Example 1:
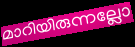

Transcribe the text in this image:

മാറിയിരുന്നല്ലോ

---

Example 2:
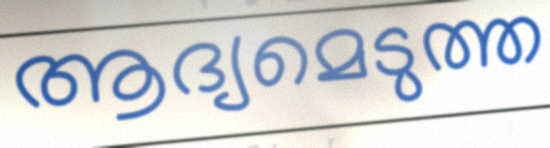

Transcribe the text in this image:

ആദ്യമെടുത്ത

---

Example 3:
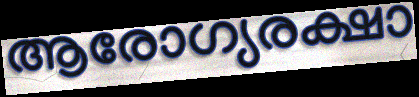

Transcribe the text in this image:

ആരോഗ്യരക്ഷാ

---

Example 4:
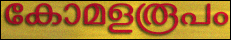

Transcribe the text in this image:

കോമളരൂപം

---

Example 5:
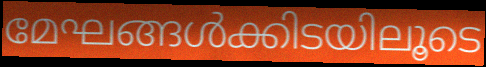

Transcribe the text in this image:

മേഘങ്ങൾക്കിടയിലൂടെ